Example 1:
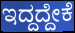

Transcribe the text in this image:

ಇದ್ದದ್ದೇಕೆ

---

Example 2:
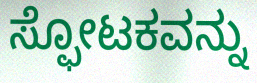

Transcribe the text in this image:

ಸ್ಫೋಟಕವನ್ನು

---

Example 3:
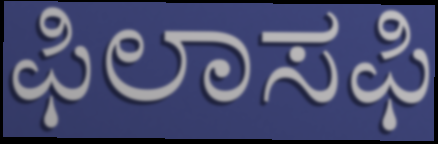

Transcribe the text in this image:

ಫಿಲಾಸಫಿ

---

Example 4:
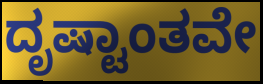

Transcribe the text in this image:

ದೃಷ್ಟಾಂತವೇ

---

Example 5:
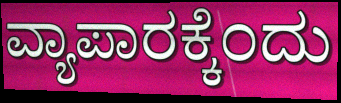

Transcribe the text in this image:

ವ್ಯಾಪಾರಕ್ಕೆಂದು